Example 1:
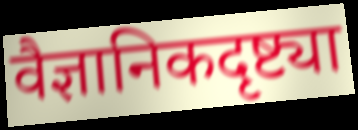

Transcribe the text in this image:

वैज्ञानिकदृष्ट्या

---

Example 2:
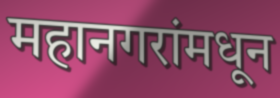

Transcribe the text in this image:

महानगरांमधून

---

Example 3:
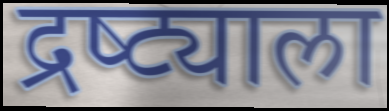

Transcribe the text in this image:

द्रष्ट्याला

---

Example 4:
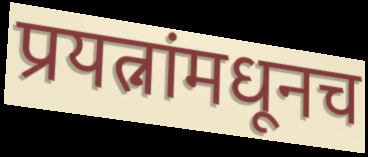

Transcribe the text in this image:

प्रयत्नांमधूनच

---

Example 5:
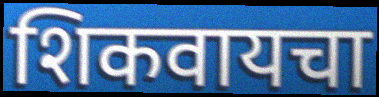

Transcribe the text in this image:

शिकवायचा